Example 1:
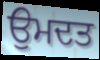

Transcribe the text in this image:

ਉਮਦਤ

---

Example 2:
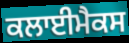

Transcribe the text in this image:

ਕਲਾਈਮੈਕਸ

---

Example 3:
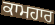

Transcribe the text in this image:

ਕਾਮਹਾਰ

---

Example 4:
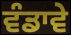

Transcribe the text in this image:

ਵੰਡਾਵੇ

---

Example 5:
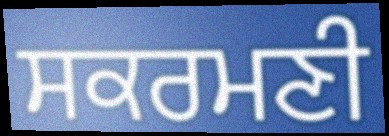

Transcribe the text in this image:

ਸਕਰਮਣੀ